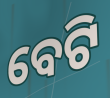
ବେଟି